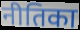
नीतिका